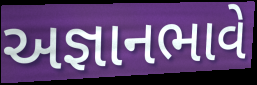
અજ્ઞાનભાવે